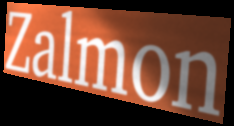
Zalmon